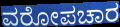
ವರೋಪಚಾರ